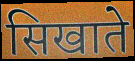
सिखाते